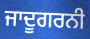
ਜਾਦੂਗਰਨੀ